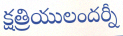
క్షత్రియులందర్నీ